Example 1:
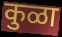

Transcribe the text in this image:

कुळा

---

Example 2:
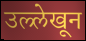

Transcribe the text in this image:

उल्लेखून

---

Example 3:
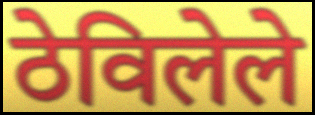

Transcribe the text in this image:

ठेविलेले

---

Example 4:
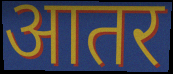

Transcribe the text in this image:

आतर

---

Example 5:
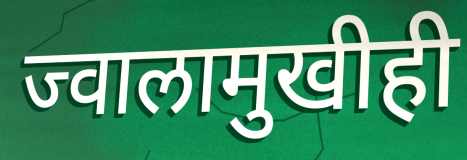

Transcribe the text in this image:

ज्वालामुखीही